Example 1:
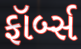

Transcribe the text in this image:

ફૉર્બ્સ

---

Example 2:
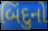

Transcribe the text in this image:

બિંદુનો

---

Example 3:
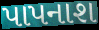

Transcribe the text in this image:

પાપનાશ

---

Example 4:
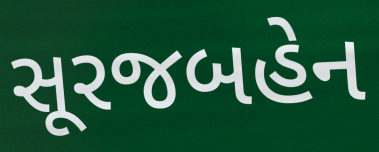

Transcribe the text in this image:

સૂરજબહેન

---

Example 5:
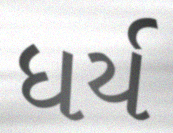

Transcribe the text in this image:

ધર્ય